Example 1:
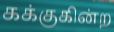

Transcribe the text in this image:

கக்குகின்ற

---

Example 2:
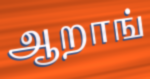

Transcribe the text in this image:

ஆறாங்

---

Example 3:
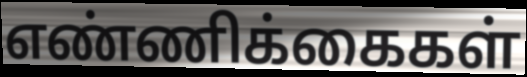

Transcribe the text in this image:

எண்ணிக்கைகள்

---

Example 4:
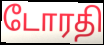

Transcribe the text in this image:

டோரதி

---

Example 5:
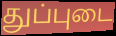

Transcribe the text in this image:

துப்புடை